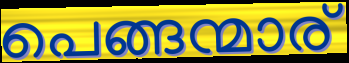
പെങ്ങന്മാര്